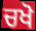
ਚਖੋ